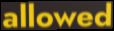
allowed